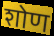
शोण